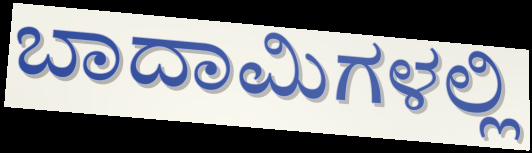
ಬಾದಾಮಿಗಳಲ್ಲಿ